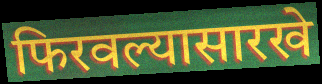
फिरवल्यासारखे